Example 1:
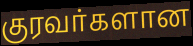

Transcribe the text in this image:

குரவர்களான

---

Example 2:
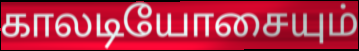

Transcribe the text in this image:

காலடியோசையும்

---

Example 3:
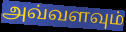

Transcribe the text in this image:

அவ்வளவும்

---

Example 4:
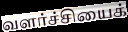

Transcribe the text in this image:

வளர்ச்சியைக்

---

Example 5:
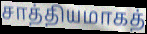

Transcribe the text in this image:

சாத்தியமாகத்